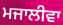
ਮਜਾਲੀਵਾ